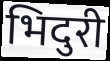
भिदुरी